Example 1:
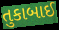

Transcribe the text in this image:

તુકાબાઈ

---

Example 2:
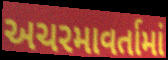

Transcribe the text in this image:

અચરમાવર્તામાં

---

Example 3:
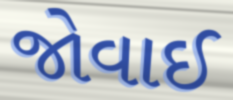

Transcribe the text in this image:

જોવાઈ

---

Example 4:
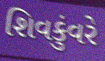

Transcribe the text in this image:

શિવકુંવરે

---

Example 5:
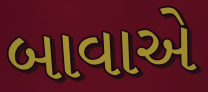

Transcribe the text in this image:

બાવાએ